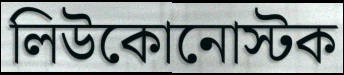
লিউকোনোস্টক